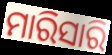
ମାରିସାରି